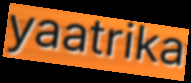
yaatrika